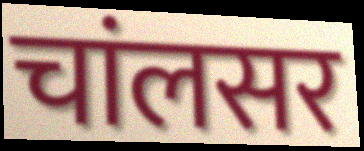
चांलसर